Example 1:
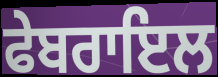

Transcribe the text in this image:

ਫੇਬਰਾਇਲ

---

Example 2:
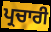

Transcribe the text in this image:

ਪ੍ਰਚਾਰੀ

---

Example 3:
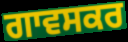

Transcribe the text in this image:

ਗਾਵਸਕਰ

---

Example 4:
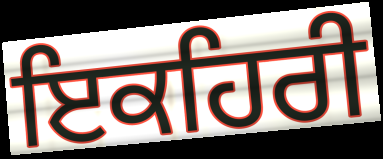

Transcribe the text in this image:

ਇਕਹਿਰੀ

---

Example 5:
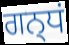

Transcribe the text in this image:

ਗਨ੍ਧਂ